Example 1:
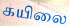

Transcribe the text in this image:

கயிலை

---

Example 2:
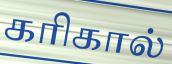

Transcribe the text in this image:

கரிகால்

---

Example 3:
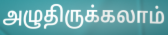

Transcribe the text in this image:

அழுதிருக்கலாம்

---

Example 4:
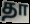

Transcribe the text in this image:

தா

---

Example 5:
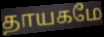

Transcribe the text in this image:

தாயகமே